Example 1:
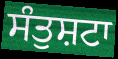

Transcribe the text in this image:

ਸੰਤੁਸ਼ਟਾ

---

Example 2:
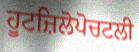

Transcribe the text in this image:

ਹੂਟਜ਼ਿਲੋਪੋਚਟਲੀ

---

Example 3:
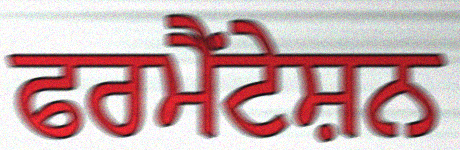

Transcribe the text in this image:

ਫਰਮੈਂਟੇਸ਼ਨ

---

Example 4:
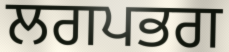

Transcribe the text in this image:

ਲਗਪਭਗ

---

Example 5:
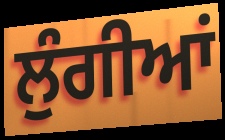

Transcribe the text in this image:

ਲੁੰਗੀਆਂ